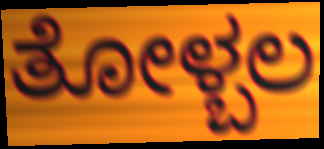
ತೋಳ್ಬಲ